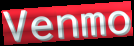
Venmo